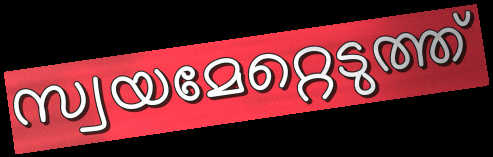
സ്വയമേറ്റെടുത്ത്